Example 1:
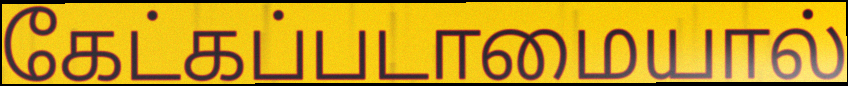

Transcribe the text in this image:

கேட்கப்படாமையால்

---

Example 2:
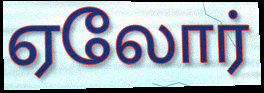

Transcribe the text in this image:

ஏலோர்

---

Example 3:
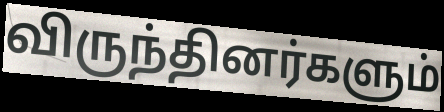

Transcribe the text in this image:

விருந்தினர்களும்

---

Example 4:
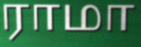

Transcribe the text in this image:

ராமா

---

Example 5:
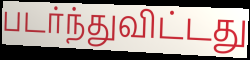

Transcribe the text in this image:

படர்ந்துவிட்டது